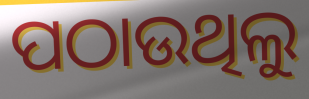
ପଠାଉଥିଲୁ